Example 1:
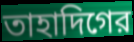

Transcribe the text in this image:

তাহাদিগের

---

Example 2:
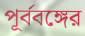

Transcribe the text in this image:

পূর্ববঙ্গের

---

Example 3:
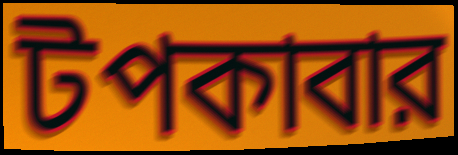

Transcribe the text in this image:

টপকাবার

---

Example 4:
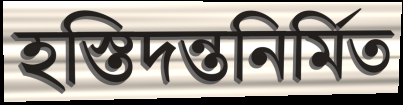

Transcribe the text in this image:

হস্তিদন্তনির্মিত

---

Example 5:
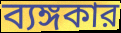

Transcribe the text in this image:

ব্যঙ্গকার